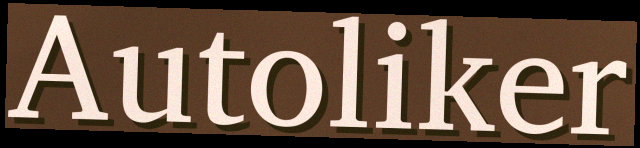
Autoliker